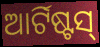
ଆର୍ଟିଷ୍ଟସ୍